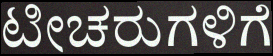
ಟೀಚರುಗಳಿಗೆ